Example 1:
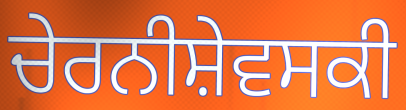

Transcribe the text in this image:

ਚੇਰਨੀਸ਼ੇਵਸਕੀ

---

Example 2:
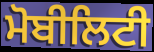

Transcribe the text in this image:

ਮੋਬੀਲਿਟੀ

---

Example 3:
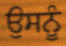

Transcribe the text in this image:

ਉਸਨੂੰ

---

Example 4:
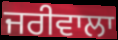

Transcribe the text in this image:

ਜਰੀਵਾਲਾ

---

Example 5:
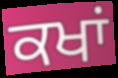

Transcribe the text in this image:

ਕਖਾਂ